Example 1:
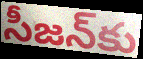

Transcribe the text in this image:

సీజన్‌కు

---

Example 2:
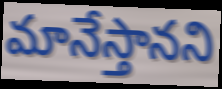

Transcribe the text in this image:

మానేస్తానని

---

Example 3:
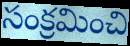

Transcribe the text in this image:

సంక్రమించి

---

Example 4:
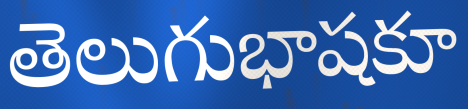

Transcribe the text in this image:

తెలుగుభాషకూ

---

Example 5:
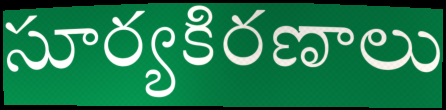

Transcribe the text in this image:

సూర్యకిరణాలు